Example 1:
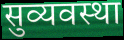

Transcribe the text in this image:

सुव्यवस्था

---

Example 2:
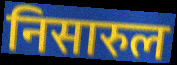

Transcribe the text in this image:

निसारुल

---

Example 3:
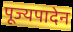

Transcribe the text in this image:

पूज्यपादेन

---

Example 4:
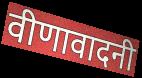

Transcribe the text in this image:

वीणावादनी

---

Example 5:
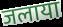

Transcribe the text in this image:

जलाया